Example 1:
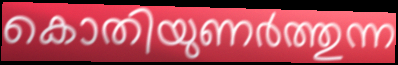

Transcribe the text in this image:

കൊതിയുണർത്തുന്ന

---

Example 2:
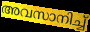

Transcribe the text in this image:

അവസാനിച്ച്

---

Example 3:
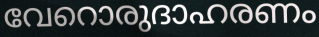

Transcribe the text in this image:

വേറൊരുദാഹരണം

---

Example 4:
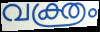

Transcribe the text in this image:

വക്ത്രം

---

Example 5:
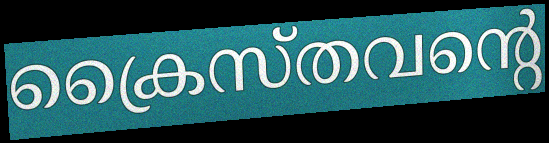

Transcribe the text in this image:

ക്രൈസ്തവന്റെ